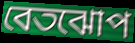
বেতঝোপ